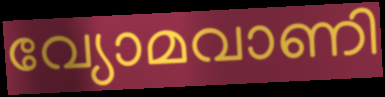
വ്യോമവാണി